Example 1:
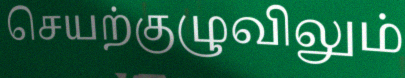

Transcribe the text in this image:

செயற்குழுவிலும்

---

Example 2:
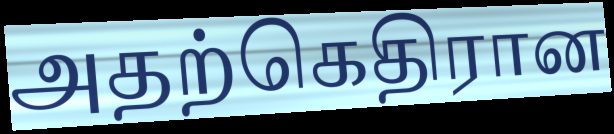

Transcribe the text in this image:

அதற்கெதிரான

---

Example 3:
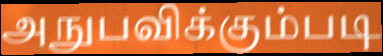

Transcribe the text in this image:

அநுபவிக்கும்படி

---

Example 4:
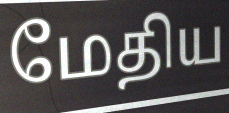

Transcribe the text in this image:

மேதிய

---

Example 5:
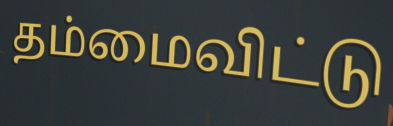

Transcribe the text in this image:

தம்மைவிட்டு